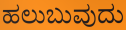
ಹಲುಬುವುದು